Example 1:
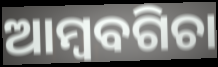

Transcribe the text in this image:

ଆମ୍ବବଗିଚା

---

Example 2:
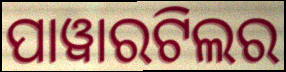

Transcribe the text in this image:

ପାୱାରଟିଲର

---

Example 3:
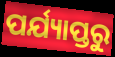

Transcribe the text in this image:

ପର୍ଯ୍ୟାପ୍ତରୁ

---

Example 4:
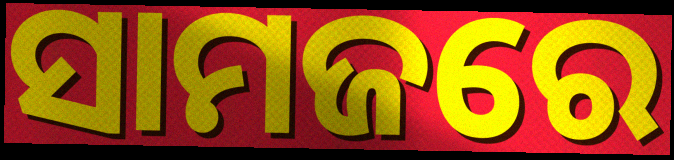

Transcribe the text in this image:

ସାମଜରେ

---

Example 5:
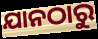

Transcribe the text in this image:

ଯାନଠାରୁ